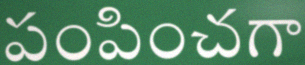
పంపించగా